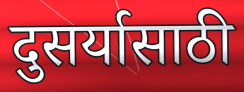
दुसर्यासाठी